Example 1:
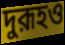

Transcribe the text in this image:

দুরূহও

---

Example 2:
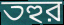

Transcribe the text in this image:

তহুর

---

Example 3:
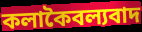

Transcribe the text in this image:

কলাকৈবল্যবাদ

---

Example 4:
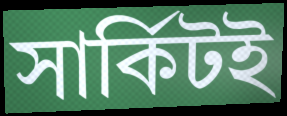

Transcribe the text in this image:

সার্কিটই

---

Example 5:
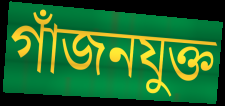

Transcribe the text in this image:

গাঁজনযুক্ত